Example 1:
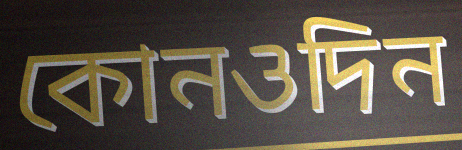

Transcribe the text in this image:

কোনওদিন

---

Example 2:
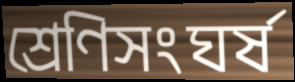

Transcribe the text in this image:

শ্রেণিসংঘর্ষ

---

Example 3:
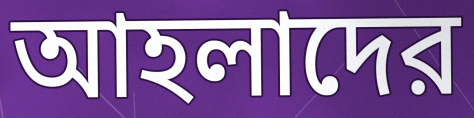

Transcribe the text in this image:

আহলাদের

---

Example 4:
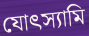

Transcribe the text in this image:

যোৎস্যামি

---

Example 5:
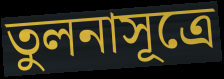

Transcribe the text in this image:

তুলনাসূত্রে